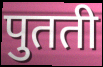
पुतती